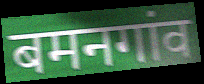
बमनगांव